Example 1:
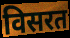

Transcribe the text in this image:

विसरत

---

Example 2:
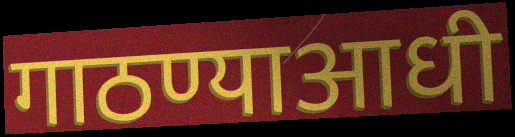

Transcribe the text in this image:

गाठण्याआधी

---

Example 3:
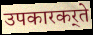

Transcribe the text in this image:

उपकारकर्ते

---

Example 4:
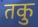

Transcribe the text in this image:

तकु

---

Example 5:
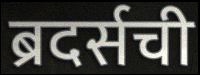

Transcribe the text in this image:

ब्रदर्सची